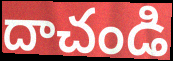
దాచండి